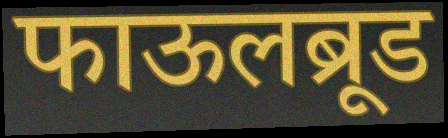
फाऊलब्रूड